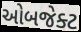
ઓબજેક્ટ